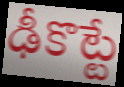
ఢీకొట్టే